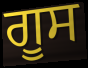
ਗੂਸ